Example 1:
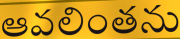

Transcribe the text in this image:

ఆవలింతను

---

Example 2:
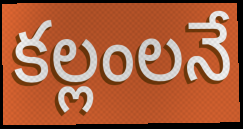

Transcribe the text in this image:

కల్లంలనే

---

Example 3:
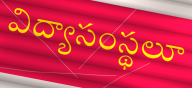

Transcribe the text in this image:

విద్యాసంస్థలూ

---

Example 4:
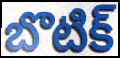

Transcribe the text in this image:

బొటిక్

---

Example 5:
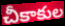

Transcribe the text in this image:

చీకాకుల